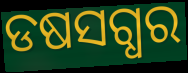
ଡଷସଗ୍ଧର